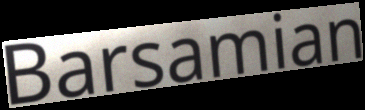
Barsamian